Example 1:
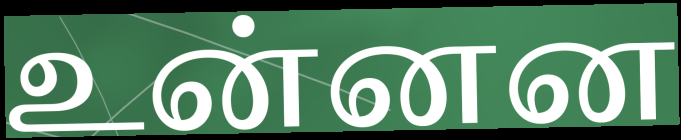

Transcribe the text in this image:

உன்னன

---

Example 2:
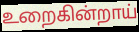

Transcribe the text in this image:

உறைகின்றாய்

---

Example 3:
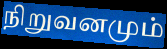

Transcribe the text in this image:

நிறுவனமும்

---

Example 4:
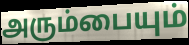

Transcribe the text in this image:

அரும்பையும்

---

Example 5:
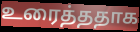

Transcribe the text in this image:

உரைத்ததாக